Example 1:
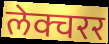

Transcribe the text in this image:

लेक्चरर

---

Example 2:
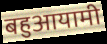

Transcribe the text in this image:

बहुआयामी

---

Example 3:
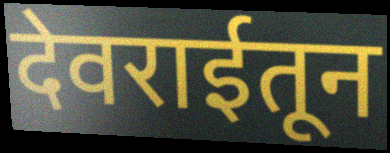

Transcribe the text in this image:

देवराईतून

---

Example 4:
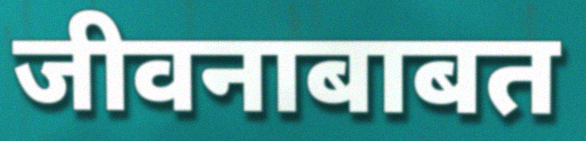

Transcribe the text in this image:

जीवनाबाबत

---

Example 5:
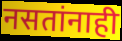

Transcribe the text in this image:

नसतांनाही